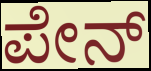
ಪೇನ್